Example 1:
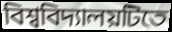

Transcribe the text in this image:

বিশ্ববিদ্যালয়টিতে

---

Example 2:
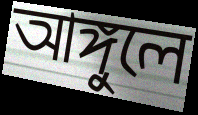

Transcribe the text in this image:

আঙ্গুলে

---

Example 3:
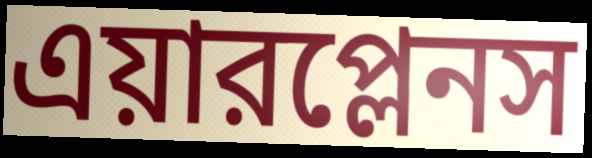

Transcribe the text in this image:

এয়ারপ্লেনস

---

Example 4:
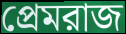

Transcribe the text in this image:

প্রেমরাজ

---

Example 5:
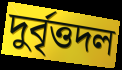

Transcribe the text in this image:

দুর্বৃত্তদল